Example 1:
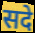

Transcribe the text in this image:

सदे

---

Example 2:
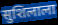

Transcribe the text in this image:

सुशिलाला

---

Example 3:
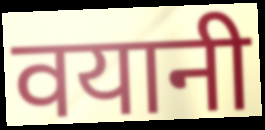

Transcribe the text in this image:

वयानी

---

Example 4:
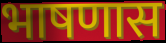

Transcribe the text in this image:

भाषणास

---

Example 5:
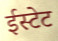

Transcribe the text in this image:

ईस्टेट